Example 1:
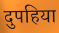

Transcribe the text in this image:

दुपहिया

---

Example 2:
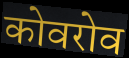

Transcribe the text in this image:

कोवरोव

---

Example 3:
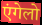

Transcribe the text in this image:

एंगेलो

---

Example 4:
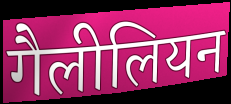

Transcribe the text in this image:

गैलीलियन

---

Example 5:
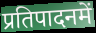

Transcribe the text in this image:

प्रतिपादनमें